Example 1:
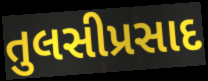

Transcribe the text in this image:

તુલસીપ્રસાદ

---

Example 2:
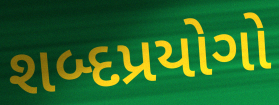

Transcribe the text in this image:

શબ્દપ્રયોગો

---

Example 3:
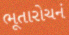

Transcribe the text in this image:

ભૂતારોચનં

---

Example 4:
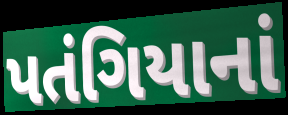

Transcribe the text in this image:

પતંગિયાનાં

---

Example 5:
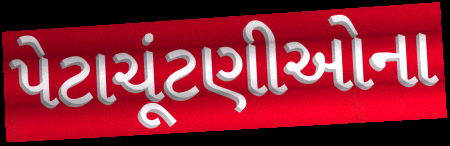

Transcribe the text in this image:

પેટાચૂંટણીઓના